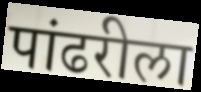
पांढरीला